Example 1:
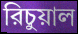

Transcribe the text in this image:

রিচুয়াল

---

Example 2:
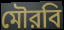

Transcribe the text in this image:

মৌরবি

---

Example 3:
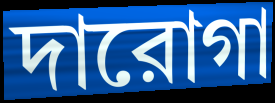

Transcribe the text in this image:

দারোগা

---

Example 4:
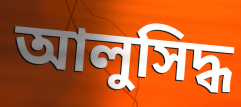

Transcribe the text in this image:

আলুসিদ্ধ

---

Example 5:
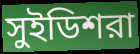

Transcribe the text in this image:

সুইডিশরা